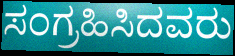
ಸಂಗ್ರಹಿಸಿದವರು